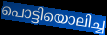
പൊട്ടിയൊലിച്ച